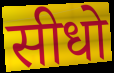
सीधो